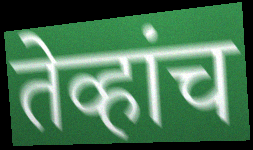
तेव्हांच